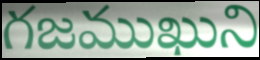
గజముఖుని